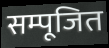
सम्पूजित